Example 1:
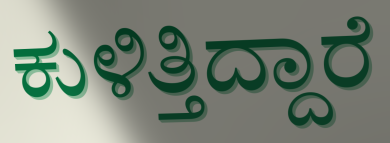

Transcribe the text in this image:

ಕುಳಿತ್ತಿದ್ದಾರೆ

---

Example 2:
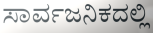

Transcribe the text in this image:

ಸಾರ್ವಜನಿಕದಲ್ಲಿ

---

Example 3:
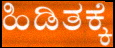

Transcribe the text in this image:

ಹಿಡಿತಕ್ಕೆ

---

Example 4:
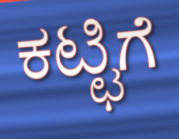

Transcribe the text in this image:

ಕಟ್ಟಿಗೆ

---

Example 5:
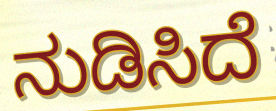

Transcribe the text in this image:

ನುಡಿಸಿದೆ